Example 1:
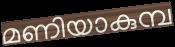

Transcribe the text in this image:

മണിയാകുമ്പ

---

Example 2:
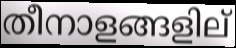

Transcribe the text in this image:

തീനാളങ്ങളില്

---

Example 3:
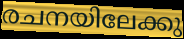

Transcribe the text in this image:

രചനയിലേക്കു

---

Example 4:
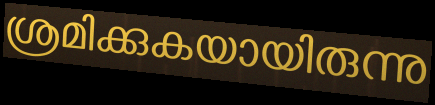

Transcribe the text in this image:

ശ്രമിക്കുകയായിരുന്നു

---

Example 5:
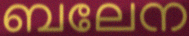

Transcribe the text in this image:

ബലേന